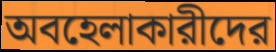
অবহেলাকারীদের